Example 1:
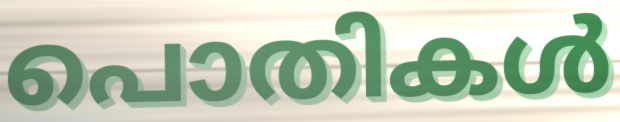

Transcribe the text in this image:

പൊതികൾ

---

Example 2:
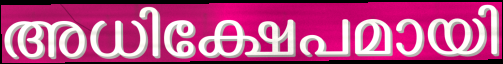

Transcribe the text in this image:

അധിക്ഷേപമായി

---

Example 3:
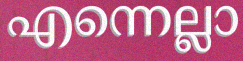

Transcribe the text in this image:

എന്നെല്ലാ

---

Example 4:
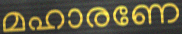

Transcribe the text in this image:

മഹാരണേ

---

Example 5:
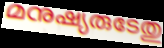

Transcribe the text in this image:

മനുഷ്യരുടേതു